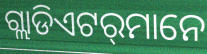
ଗ୍ଲାଡିଏଟର୍‍ମାନେ